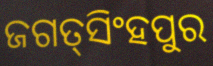
ଜଗତ୍‌ସିଂହପୁର